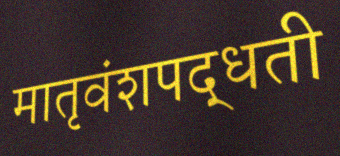
मातृवंशपद्धती